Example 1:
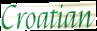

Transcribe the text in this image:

Croatian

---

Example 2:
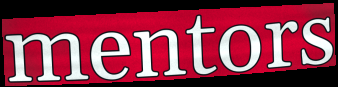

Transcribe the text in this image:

mentors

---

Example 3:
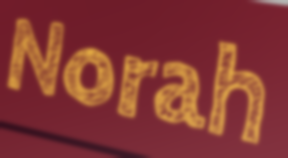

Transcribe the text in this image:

Norah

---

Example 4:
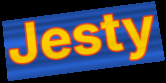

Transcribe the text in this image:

Jesty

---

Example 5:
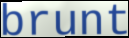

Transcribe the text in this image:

brunt